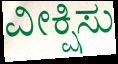
ವೀಕ್ಷಿಸು